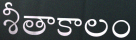
శీతాకాలం